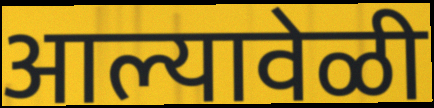
आल्यावेळी